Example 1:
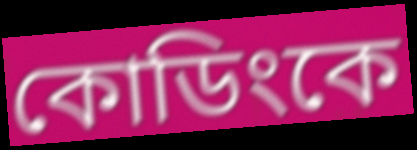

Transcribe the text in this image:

কোডিংকে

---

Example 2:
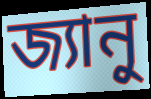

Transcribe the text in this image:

জ্যানু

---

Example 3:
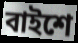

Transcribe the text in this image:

বাইশে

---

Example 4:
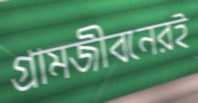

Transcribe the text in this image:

গ্রামজীবনেরই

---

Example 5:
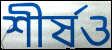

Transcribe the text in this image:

শীর্ষও